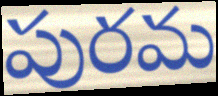
పురమ